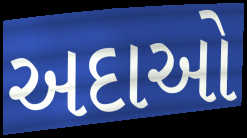
અદાઓ